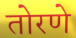
तोरणे